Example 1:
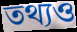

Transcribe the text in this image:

তথ্যও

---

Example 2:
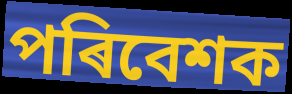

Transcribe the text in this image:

পৰিবেশক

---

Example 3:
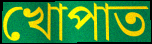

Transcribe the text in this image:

খোপাত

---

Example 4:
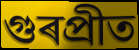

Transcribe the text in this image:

গুৰপ্ৰীত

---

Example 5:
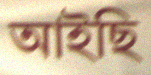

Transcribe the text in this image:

আইছি